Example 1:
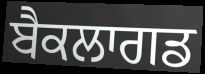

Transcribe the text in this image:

ਬੈਕਲਾਗਡ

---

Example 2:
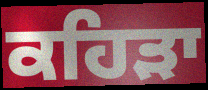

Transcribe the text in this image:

ਕਹਿੜਾ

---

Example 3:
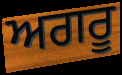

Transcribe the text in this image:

ਅਗਰੂ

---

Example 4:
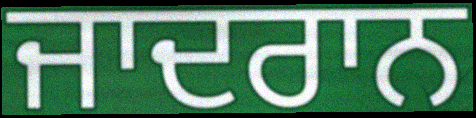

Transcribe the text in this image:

ਜਾਦਰਾਨ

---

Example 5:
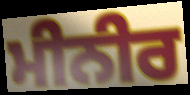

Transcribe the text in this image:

ਮੀਨੀਰ